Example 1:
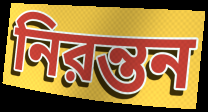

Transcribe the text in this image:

নিরন্তন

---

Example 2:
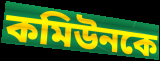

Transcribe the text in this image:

কমিউনকে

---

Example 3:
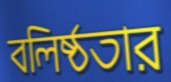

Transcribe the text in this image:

বলিষ্ঠতার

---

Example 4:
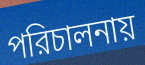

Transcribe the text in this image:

পরিচালনায়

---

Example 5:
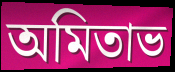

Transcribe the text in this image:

অমিতাভ